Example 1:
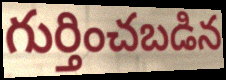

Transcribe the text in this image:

గుర్తించబడిన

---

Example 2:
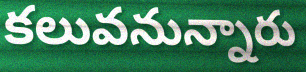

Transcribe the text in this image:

కలువనున్నారు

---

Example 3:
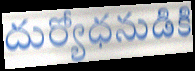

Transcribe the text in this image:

దుర్యోధనుడికి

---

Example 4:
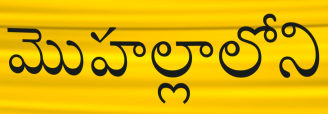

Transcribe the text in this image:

మొహల్లాలోని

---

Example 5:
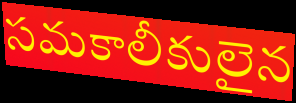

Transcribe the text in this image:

సమకాలీకులైన